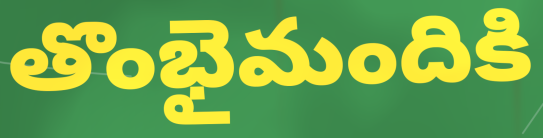
తొంభైమందికి